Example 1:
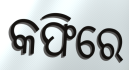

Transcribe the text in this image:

କଫିରେ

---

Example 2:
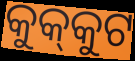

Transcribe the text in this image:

କୁକ୍‍କୁଟ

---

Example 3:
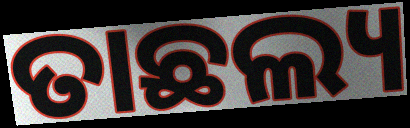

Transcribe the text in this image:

ତାଛଲ୍ୟ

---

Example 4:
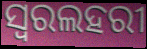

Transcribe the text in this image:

ସ୍ୱରଲହରୀ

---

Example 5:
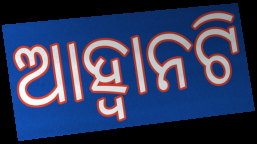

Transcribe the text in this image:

ଆହ୍ଵାନଟି